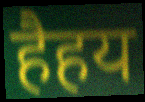
हैहय